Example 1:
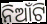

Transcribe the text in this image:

ନିଆଁଟି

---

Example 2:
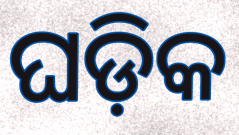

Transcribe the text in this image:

ଘଡ଼ିକ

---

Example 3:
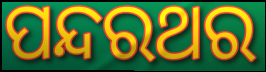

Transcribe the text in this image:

ପନ୍ଦରଥର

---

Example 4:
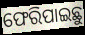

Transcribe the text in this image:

ଫେରିପାଇଛୁ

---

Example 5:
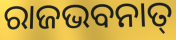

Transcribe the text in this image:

ରାଜଭବନାତ୍